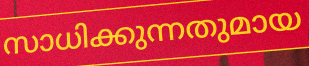
സാധിക്കുന്നതുമായ